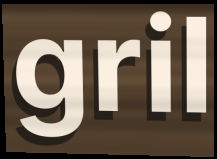
gril